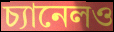
চ্যানেলও